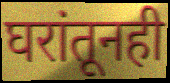
घरांतूनही